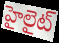
హైలైట్